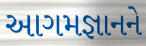
આગમજ્ઞાનને